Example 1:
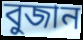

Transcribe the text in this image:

বুজান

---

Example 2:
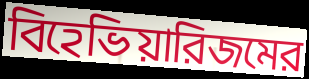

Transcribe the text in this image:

বিহেভিয়ারিজমের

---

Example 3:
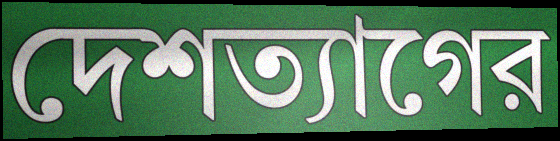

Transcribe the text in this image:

দেশত্যাগের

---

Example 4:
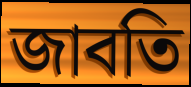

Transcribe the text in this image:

জাবতি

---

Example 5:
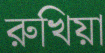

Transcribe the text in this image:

রুখিয়া